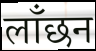
लाँछन